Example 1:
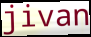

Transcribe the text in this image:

jivan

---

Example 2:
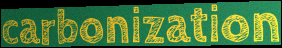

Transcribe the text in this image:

carbonization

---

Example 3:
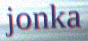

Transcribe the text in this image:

jonka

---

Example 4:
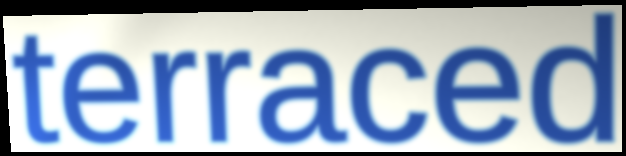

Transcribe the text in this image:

terraced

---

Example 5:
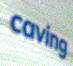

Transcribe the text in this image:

caving